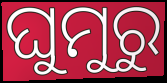
ଘୁମୁରୁ